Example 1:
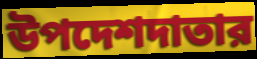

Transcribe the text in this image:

উপদেশদাতার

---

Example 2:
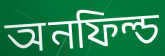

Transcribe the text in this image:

অনফিল্ড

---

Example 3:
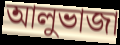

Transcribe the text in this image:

আলুভাজা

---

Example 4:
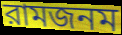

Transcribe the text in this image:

রামজনম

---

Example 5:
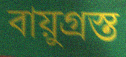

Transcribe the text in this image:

বায়ুগ্রস্ত